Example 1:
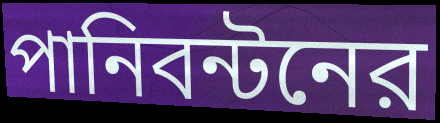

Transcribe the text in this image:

পানিবন্টনের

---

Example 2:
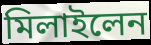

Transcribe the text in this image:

মিলাইলেন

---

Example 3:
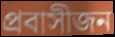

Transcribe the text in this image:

প্রবাসীজন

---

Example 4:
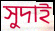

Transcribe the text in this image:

সুদাই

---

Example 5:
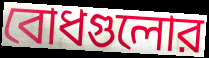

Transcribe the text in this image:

বোধগুলোর